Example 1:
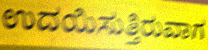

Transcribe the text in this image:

ಉದಯಿಸುತ್ತಿರುವಾಗ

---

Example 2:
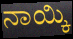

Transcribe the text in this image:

ನಾಯ್ಕಿ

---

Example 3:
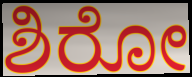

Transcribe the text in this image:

ಶಿರೋ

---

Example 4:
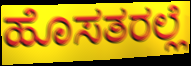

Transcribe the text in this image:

ಹೊಸತರಲ್ಲೆ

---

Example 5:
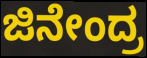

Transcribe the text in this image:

ಜಿನೇಂದ್ರ